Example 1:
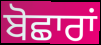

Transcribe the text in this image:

ਬੋਛਾਰਾਂ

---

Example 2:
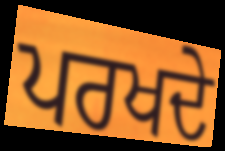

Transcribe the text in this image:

ਪਰਖਦੇ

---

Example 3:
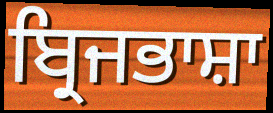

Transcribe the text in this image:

ਬ੍ਰਿਜਭਾਸ਼ਾ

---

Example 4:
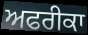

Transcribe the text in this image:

ਅਫਰੀਕਾ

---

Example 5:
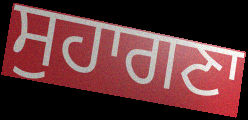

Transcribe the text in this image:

ਸੁਹਾਗਣਾ